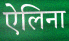
ऐलिना